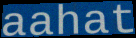
aahat